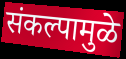
संकल्पामुळे